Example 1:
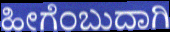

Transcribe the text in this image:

ಹೀಗೆಂಬುದಾಗಿ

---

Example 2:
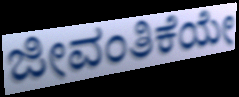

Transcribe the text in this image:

ಜೀವಂತಿಕೆಯೇ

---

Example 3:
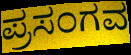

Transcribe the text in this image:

ಪ್ರಸಂಗವ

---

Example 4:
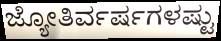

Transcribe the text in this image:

ಜ್ಯೋತಿರ್ವರ್ಷಗಳಷ್ಟು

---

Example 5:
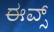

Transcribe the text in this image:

ಈವ್ಸ್